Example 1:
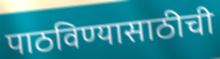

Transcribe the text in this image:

पाठविण्यासाठीची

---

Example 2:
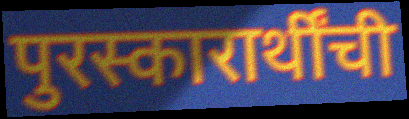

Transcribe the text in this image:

पुरस्कारार्थींची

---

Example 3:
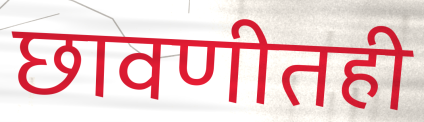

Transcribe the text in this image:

छावणीतही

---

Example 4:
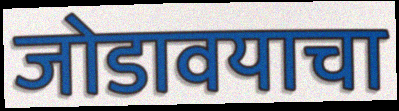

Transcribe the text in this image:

जोडावयाचा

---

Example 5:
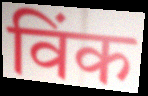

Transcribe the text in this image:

विंक